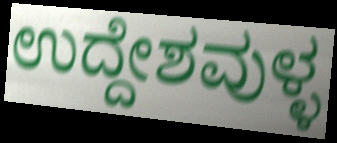
ಉದ್ದೇಶವುಳ್ಳ